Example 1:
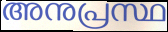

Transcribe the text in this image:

അനുപ്രസ്ഥ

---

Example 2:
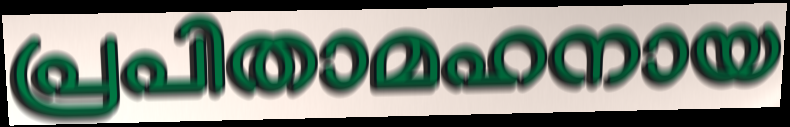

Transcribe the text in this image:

പ്രപിതാമഹനായ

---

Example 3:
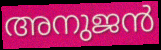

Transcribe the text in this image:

അനുജൻ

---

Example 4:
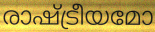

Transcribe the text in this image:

രാഷ്ട്രീയമോ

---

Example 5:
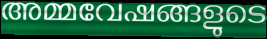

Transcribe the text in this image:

അമ്മവേഷങ്ങളുടെ